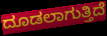
ದೂಡಲಾಗುತ್ತಿದೆ